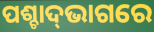
ପଶ୍ଚାଦ୍‍ଭାଗରେ